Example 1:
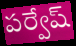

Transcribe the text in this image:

పర్వేష్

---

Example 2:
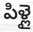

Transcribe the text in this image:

పిళ్లై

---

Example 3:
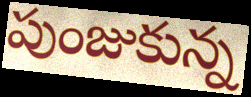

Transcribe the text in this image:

పుంజుకున్న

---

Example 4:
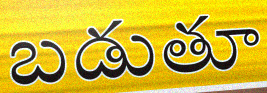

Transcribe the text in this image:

బడుతూ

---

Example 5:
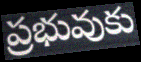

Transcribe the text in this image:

ప్రభువుకు